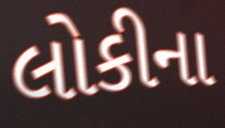
લોકીના